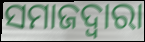
ସମାଜଦ୍ଵାରା